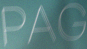
PAG